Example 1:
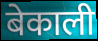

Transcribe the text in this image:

बेकाली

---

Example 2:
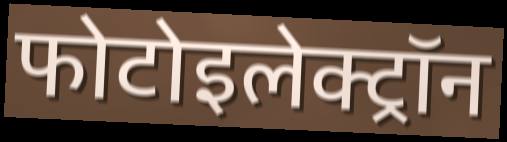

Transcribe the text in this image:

फोटोइलेक्ट्रॉन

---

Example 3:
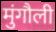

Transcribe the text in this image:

मुंगौली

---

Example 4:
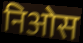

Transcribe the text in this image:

निओस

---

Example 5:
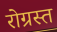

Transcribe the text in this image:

रोग्रस्त